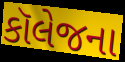
કૉલેજના